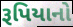
રૂપિયાનો